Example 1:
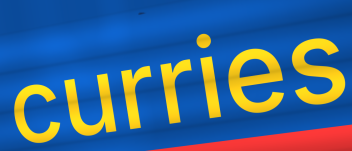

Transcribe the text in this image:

curries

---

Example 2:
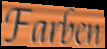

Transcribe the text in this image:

Farben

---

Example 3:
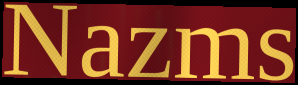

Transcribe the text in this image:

Nazms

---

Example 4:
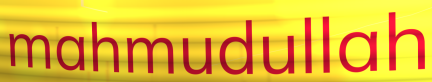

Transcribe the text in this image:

mahmudullah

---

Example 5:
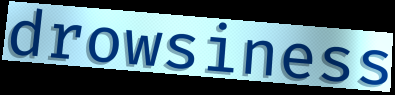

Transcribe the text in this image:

drowsiness